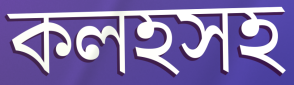
কলহসহ